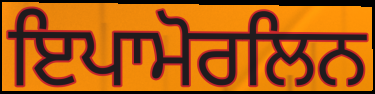
ਇਪਾਮੋਰਲਿਨ